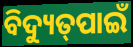
ବିଦ୍ୟୁତ୍‌ପାଇଁ